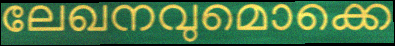
ലേഖനവുമൊക്കെ